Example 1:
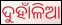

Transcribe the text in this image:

ଦୁହାଁଳିଆ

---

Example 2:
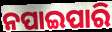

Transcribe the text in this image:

ନପାଇପାରି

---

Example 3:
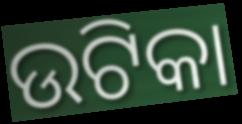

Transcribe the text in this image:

ଉଟିକା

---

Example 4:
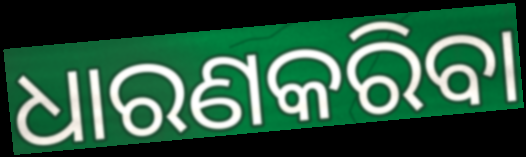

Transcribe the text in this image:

ଧାରଣକରିବା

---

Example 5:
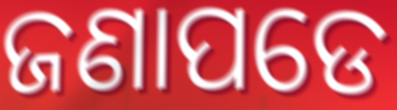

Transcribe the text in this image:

ଜଣାପଡେ